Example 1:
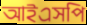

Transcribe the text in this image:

আইএসপি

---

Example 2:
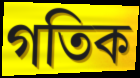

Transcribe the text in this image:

গতিক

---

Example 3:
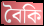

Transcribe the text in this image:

বৈকি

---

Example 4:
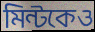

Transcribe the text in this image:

মিন্টকেও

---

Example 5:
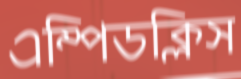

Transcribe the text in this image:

এম্পিডক্লিস